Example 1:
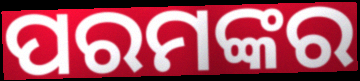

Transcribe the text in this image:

ପରମଙ୍କର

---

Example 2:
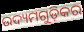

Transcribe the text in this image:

ଉଦ୍ୟମଗୁଡ଼ିକର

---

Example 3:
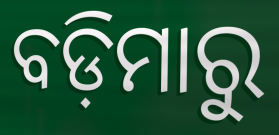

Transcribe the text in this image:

ବଡ଼ିମାରୁ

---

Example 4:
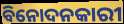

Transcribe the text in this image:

ବିନୋଦନକାରୀ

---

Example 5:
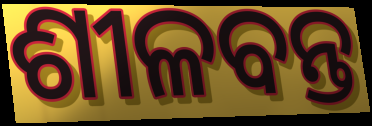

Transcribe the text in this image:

ଶୀଳବନ୍ତ